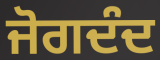
ਜੋਗਦੰਦ